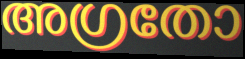
അഗ്രതോ